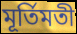
মূর্তিমতী